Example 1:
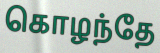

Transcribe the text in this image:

கொழந்தே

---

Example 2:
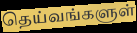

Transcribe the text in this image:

தெய்வங்களுள்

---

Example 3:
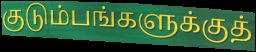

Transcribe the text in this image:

குடும்பங்களுக்குத்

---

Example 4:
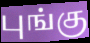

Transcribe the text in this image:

புங்கு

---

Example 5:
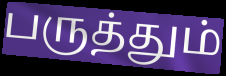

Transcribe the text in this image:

பருத்தும்